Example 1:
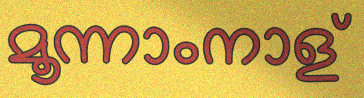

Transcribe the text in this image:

മൂന്നാംനാള്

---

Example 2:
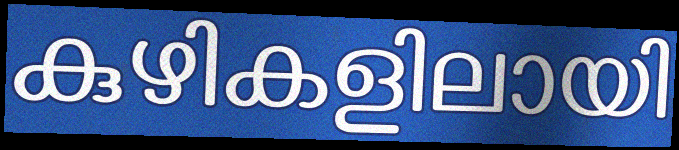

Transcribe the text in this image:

കുഴികളിലായി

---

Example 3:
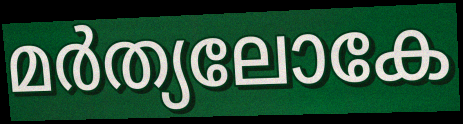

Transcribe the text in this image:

മർത്യലോകേ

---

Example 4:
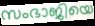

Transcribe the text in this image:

സംഭാജിയെ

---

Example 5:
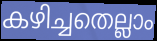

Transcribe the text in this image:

കഴിച്ചതെല്ലാം